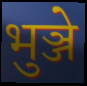
भुञ्जे